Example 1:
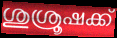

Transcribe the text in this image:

ശുശ്രൂഷക്ക്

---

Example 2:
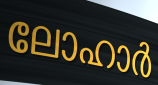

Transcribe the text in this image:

ലോഹാർ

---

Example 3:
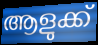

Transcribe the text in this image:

ആളുക്ക്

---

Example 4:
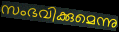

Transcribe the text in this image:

സംഭവിക്കുമെന്നു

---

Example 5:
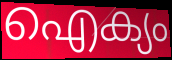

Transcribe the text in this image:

ഐക്യം